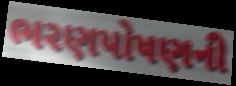
ભરણપોષણની